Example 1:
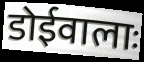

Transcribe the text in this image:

डोईवालाः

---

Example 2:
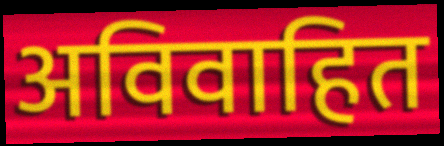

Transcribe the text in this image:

अविवाहित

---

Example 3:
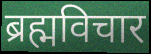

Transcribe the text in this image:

ब्रह्मविचार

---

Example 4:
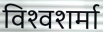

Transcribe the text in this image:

विश्वशर्मा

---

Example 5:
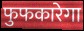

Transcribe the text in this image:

फुफकारेगा